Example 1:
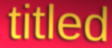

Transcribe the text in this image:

titled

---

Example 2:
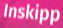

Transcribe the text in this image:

Inskipp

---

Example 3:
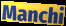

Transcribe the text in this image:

Manchi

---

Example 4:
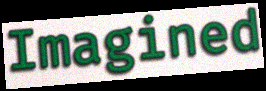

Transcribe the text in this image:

Imagined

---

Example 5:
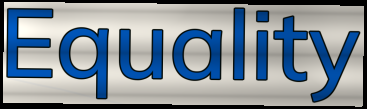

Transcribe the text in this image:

Equality